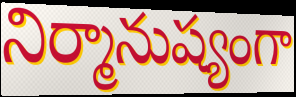
నిర్మానుష్యంగా